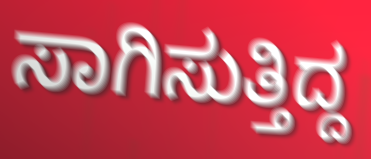
ಸಾಗಿಸುತ್ತಿದ್ದ